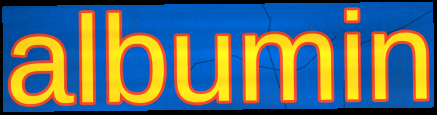
albumin